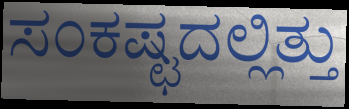
ಸಂಕಷ್ಟದಲ್ಲಿತ್ತು